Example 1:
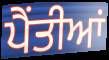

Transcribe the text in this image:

ਪੈਂਤੀਆਂ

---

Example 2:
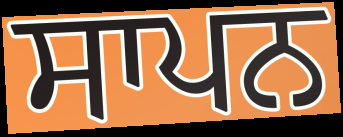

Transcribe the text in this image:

ਸਾਪਨ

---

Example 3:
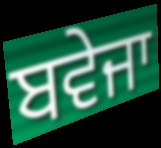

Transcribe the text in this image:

ਬਵੇਜਾ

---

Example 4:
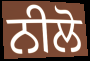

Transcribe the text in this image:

ਨੀਲੋ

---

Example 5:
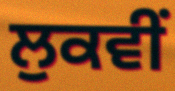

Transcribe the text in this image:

ਲੁਕਵੀਂ